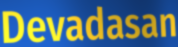
Devadasan